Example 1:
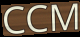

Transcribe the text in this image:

CCM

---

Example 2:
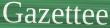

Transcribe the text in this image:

Gazettee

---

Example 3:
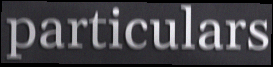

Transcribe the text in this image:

particulars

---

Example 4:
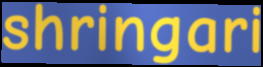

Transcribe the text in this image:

shringari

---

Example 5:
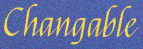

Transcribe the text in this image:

Changable